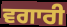
ਵਗਾਰੀ